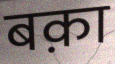
बक़ा